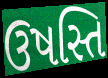
ઉષસ્તિ